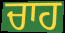
ਚਾਹ